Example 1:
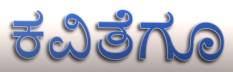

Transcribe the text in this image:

ಕವಿತೆಗೂ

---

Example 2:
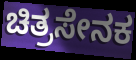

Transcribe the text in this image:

ಚಿತ್ರಸೇನಕ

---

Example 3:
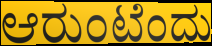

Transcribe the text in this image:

ಆರುಂಟೆಂದು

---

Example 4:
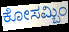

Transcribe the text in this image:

ಕೋಸಮ್ಬಿಂ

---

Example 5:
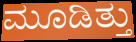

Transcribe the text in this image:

ಮೂಡಿತ್ತು